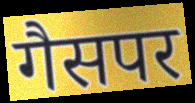
गैसपर